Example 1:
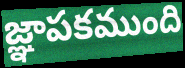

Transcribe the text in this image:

జ్ఞాపకముంది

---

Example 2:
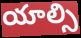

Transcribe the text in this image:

యాల్సి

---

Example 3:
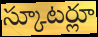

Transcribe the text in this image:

స్కూటర్లూ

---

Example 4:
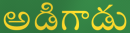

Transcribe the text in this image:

అడిగాడు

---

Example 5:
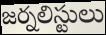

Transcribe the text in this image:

జర్నలిస్టులు